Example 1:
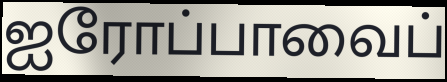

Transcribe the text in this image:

ஐரோப்பாவைப்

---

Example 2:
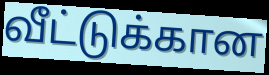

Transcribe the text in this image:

வீட்டுக்கான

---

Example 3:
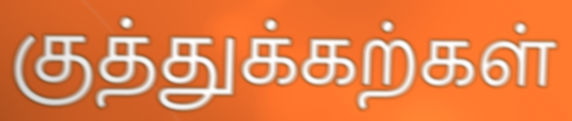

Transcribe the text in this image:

குத்துக்கற்கள்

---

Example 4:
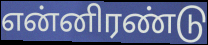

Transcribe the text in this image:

என்னிரண்டு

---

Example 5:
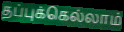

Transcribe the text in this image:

தப்புக்கெல்லாம்